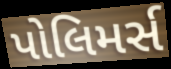
પોલિમર્સ